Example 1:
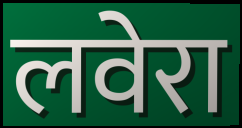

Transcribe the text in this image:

लवेरा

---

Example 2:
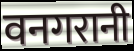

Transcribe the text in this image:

वनगरानी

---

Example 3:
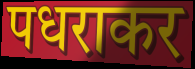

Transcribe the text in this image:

पधराकर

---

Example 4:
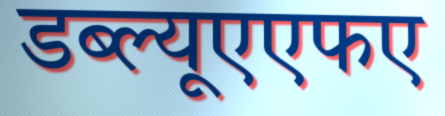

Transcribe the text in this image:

डब्ल्यूएएफए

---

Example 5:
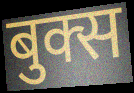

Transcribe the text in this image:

बुक्‍स